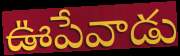
ఊపేవాడు